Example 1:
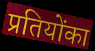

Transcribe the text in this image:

प्रतियोंका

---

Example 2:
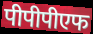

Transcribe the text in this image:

पीपीपीएफ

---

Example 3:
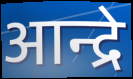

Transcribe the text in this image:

आन्द्रे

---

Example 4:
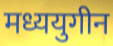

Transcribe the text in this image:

मध्ययुगीन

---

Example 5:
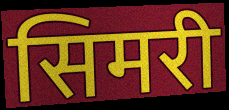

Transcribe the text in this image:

सिमरी